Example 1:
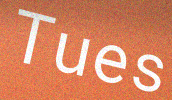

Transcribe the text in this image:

Tues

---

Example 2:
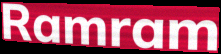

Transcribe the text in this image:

Ramram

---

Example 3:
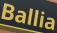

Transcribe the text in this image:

Ballia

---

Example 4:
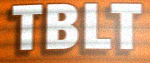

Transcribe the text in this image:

TBLT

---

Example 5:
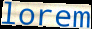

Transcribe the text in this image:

lorem